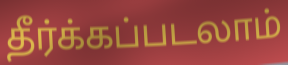
தீர்க்கப்படலாம்